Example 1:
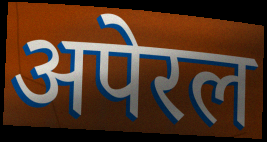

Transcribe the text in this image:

अपेरल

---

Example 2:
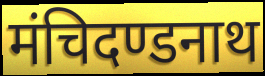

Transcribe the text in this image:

मंचिदण्डनाथ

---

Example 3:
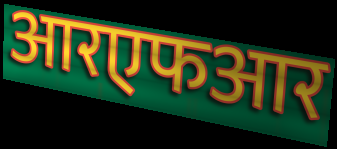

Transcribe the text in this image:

आरएफआर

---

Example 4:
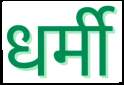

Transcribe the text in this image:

धर्मी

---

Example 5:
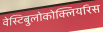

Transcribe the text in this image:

वेस्टिबुलोकोक्लियरिस